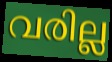
വരില്ല